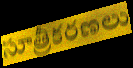
సూత్రీకరణలు